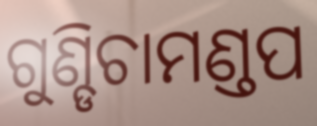
ଗୁଣ୍ଡିଚାମଣ୍ଡପ